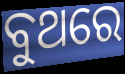
ବୁଥରେ